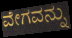
ವೇಗವನ್ನು